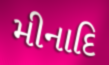
મીનાદિ